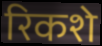
रिकशे